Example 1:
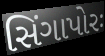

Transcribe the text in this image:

સિંગાપોરઃ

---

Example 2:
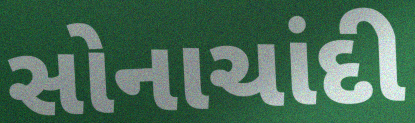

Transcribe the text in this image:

સોનાચાંદી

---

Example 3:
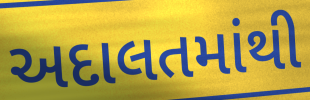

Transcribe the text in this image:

અદાલતમાંથી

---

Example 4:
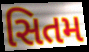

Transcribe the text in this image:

સિતમ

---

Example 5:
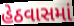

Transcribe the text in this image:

હેઠવાસમાં